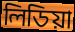
লিডিয়া